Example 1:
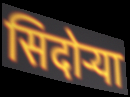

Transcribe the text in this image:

सिदोर्‍या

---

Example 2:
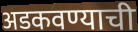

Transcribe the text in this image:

अडकवण्याची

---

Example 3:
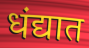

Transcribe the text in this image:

धंद्यात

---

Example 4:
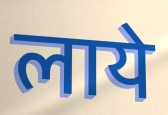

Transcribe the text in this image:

लाये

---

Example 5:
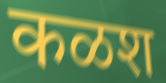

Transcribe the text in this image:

कळश